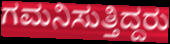
ಗಮನಿಸುತ್ತಿದ್ದರು